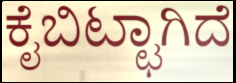
ಕೈಬಿಟ್ಟಾಗಿದೆ